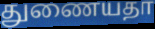
துணையதா